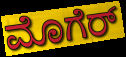
ಮೊಗೆರ್